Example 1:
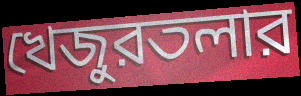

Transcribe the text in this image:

খেজুরতলার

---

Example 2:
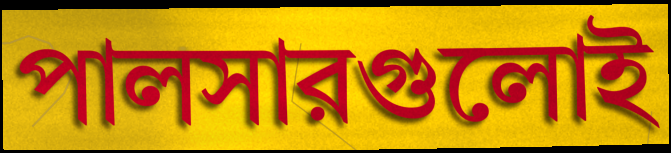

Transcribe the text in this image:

পালসারগুলোই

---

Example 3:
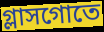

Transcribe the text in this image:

গ্লাসগোতে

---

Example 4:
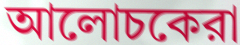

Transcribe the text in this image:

আলোচকেরা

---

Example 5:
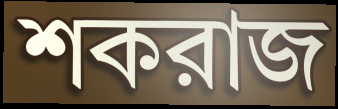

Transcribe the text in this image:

শকরাজ